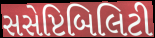
સસેપ્ટિબિલિટી